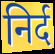
निर्द